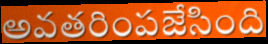
అవతరింపజేసింది